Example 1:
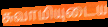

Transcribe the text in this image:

சுவாமியுடைய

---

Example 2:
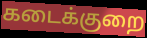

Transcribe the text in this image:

கடைக்குறை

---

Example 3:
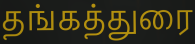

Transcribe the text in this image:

தங்கத்துரை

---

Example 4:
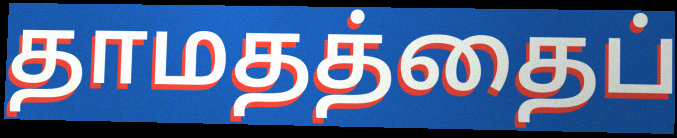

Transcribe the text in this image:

தாமதத்தைப்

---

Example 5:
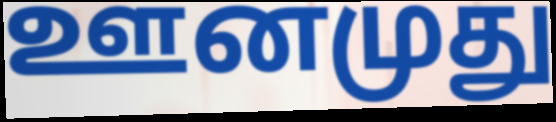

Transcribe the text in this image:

ஊனமுது